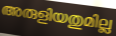
അരുളിയതുമില്ല